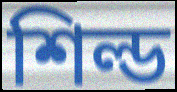
শিল্ড